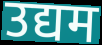
उद्यम